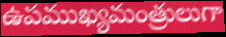
ఉపముఖ్యమంత్రులుగా